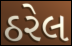
ઠરેલ